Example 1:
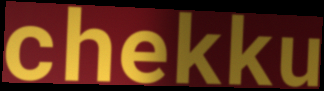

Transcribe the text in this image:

chekku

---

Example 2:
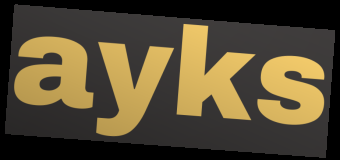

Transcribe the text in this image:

ayks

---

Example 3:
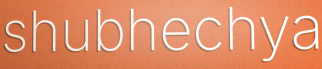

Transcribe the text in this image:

shubhechya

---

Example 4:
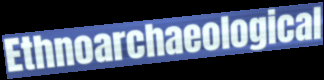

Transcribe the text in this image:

Ethnoarchaeological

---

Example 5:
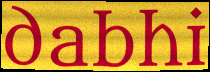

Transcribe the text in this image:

dabhi